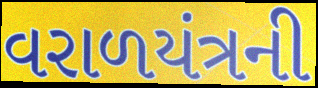
વરાળયંત્રની